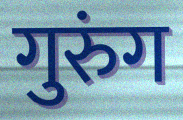
गुरुंग